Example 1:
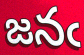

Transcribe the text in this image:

జనఁ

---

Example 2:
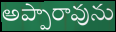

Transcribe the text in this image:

అప్పారావును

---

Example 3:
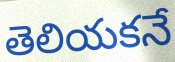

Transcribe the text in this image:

తెలియకనే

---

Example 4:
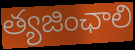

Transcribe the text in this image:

త్యజింఛాలి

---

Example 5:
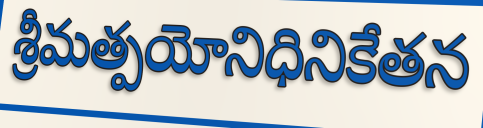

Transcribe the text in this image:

శ్రీమత్పయోనిధినికేతన